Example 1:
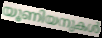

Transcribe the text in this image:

യൂണിയനുകൾ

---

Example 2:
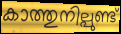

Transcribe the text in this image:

കാത്തുനില്പുണ്ട്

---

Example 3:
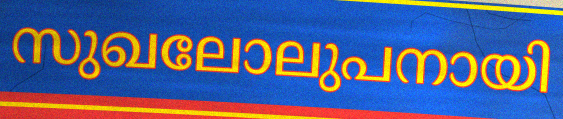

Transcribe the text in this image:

സുഖലോലുപനായി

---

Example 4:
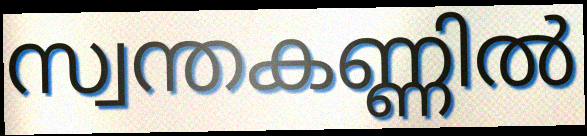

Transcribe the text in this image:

സ്വന്തകണ്ണിൽ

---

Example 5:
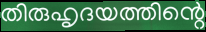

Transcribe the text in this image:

തിരുഹൃദയത്തിന്റെ